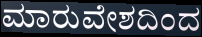
ಮಾರುವೇಶದಿಂದ